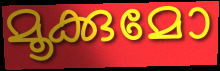
മൂക്കുമോ